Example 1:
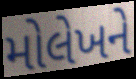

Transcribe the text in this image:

મોલેખને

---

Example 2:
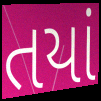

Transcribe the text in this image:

તયાં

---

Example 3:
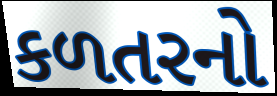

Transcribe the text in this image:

કળતરનો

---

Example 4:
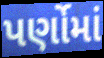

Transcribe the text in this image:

પર્ણોમાં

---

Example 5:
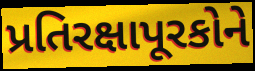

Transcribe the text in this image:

પ્રતિરક્ષાપૂરકોને